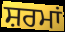
ਸ਼ਰਮਾਂ